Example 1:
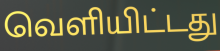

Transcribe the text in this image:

வெளியிட்டது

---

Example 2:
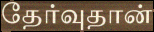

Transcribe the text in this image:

தேர்வுதான்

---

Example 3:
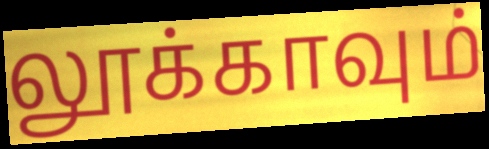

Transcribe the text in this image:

லூக்காவும்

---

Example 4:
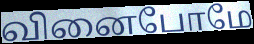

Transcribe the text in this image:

வினைபோமே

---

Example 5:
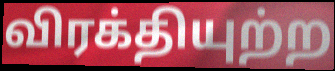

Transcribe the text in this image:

விரக்தியுற்ற